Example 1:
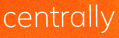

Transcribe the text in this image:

centrally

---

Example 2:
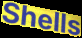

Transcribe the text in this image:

Shells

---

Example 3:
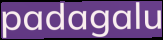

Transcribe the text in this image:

padagalu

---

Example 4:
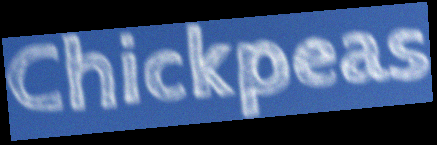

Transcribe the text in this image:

Chickpeas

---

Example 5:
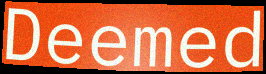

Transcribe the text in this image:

Deemed